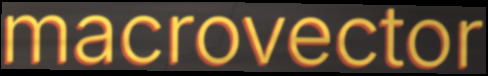
macrovector